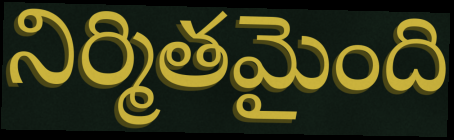
నిర్మితమైంది